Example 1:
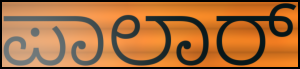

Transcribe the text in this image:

ಪಾಲಾರ್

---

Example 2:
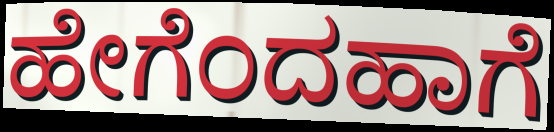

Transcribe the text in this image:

ಹೇಗೆಂದಹಾಗೆ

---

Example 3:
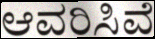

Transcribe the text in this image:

ಆವರಿಸಿವೆ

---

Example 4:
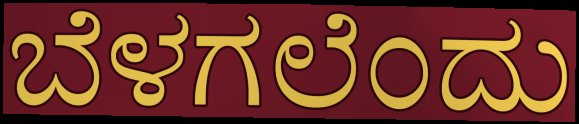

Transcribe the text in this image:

ಬೆಳಗಲೆಂದು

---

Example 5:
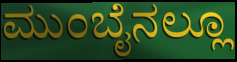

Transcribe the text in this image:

ಮುಂಬೈನಲ್ಲೂ